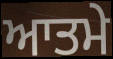
ਆਤਮੇ